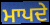
ਮਾਪਦੇ